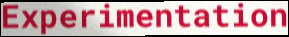
Experimentation